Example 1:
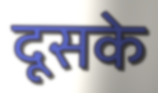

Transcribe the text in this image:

दूसके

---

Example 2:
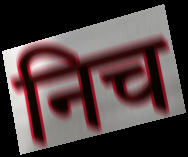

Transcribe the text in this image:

निच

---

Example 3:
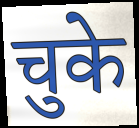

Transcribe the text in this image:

चुके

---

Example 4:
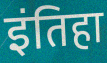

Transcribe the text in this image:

इंतिहा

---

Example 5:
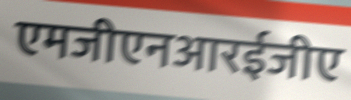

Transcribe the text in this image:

एमजीएनआरईजीए